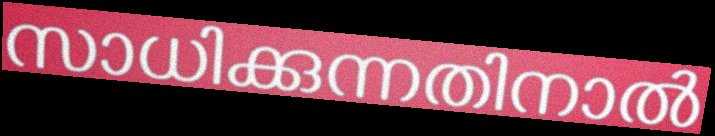
സാധിക്കുന്നതിനാൽ